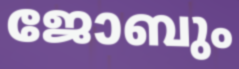
ജോബും